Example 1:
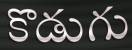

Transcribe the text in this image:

కొడుగు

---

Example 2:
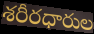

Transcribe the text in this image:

శరీరధారుల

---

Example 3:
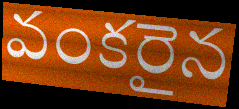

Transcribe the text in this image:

వంకరైన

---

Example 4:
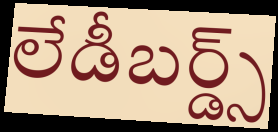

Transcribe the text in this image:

లేడీబర్డ్స్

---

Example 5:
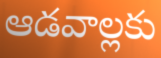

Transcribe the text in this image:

ఆడవాల్లకు